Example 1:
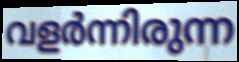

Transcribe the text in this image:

വളർന്നിരുന്ന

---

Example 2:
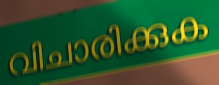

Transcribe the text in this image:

വിചാരിക്കുക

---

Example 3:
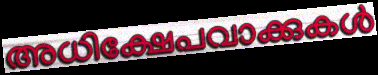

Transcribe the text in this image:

അധിക്ഷേപവാക്കുകൾ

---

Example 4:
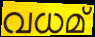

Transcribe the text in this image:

വധമ്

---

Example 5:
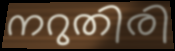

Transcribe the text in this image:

നറുതിരി